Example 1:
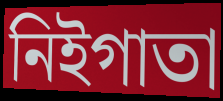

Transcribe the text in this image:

নিইগাতা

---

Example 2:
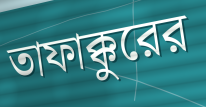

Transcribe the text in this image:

তাফাক্কুরের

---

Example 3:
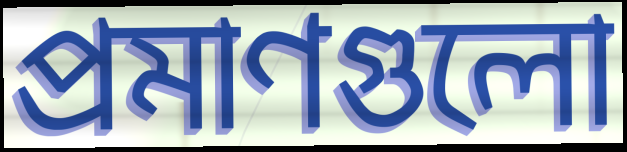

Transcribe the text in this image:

প্রমাণগুলো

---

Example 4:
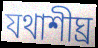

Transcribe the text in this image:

যথাশীঘ্র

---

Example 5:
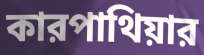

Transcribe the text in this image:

কারপাথিয়ার